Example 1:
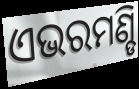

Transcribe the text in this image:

ଏଭରମଣ୍ଡି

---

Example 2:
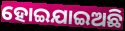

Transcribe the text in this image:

ହୋଇଯାଇଅଛି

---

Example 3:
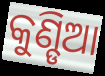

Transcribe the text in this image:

କୁଣ୍ଡିଆ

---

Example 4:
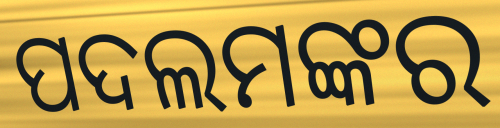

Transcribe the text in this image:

ପଦଲମଙ୍କର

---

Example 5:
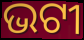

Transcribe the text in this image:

ଭଟୀ